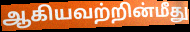
ஆகியவற்றின்மீது